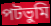
পটভুমি